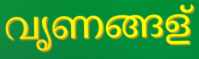
വൃണങ്ങള്